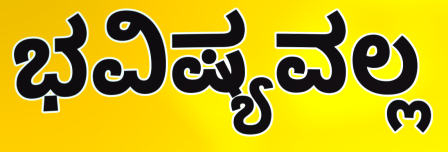
ಭವಿಷ್ಯವಲ್ಲ